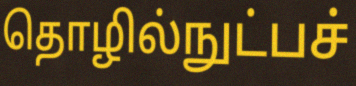
தொழில்நுட்பச்